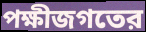
পক্ষীজগতের